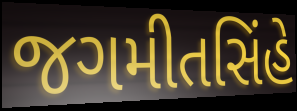
જગમીતસિંહે